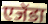
एजेंडा